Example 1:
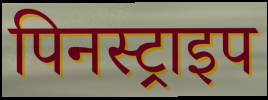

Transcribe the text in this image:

पिनस्ट्राइप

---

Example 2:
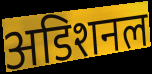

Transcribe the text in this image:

अडिशनल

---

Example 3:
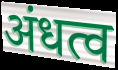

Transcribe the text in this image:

अंधत्व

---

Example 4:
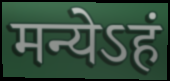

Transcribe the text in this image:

मन्येऽहं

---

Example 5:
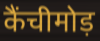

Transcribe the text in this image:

कैंचीमोड़